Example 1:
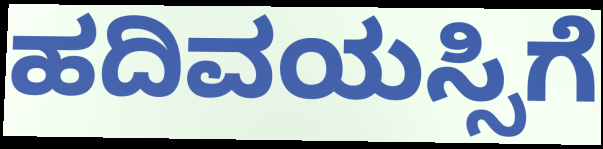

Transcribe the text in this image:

ಹದಿವಯಸ್ಸಿಗೆ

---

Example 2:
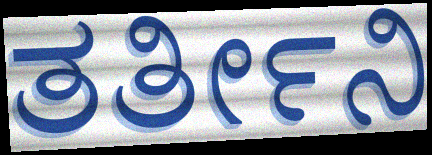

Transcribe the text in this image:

ತರ್ತೀನಿ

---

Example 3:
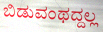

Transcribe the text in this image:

ಬಿಡುವಂಥದ್ದಲ್ಲ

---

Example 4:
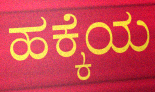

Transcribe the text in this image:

ಹಕ್ಕೆಯ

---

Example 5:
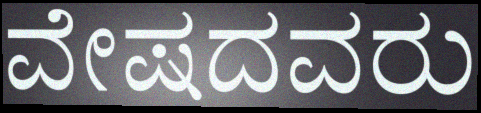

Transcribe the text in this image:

ವೇಷದವರು